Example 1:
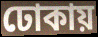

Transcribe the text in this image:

ঢোকায়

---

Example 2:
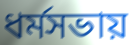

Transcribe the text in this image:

ধর্মসভায়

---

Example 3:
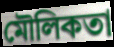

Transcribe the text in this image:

মৌলিকতা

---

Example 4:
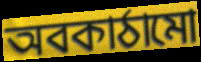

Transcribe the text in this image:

অবকাঠামো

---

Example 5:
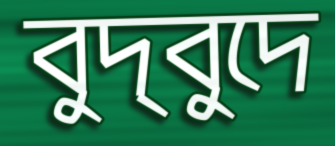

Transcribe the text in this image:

বুদ্‌বুদে